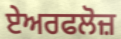
ਏਅਰਫਲੋਜ਼